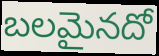
బలమైనదో